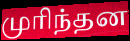
முரிந்தன